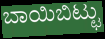
ಬಾಯಿಬಿಟ್ಟು